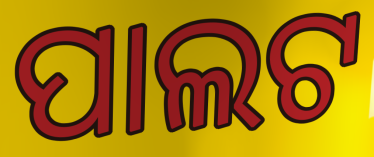
ପାଲଟ